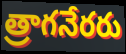
త్రాగనేరరు